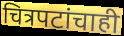
चित्रपटांचाही